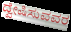
ದ್ವೇಷಿಸುವವರ